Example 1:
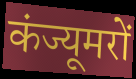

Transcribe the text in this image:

कंज्यूमरों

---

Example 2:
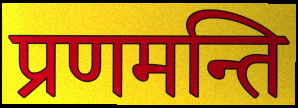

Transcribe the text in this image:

प्रणमन्ति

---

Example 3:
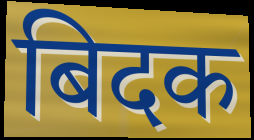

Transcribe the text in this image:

बिदक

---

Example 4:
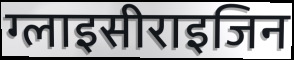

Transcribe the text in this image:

ग्लाइसीराइजिन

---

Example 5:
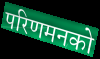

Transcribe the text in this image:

परिणमनको